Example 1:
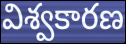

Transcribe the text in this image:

విశ్వకారణ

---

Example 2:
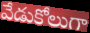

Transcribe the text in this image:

వేడుకోలుగా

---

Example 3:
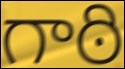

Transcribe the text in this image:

గాఠి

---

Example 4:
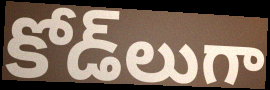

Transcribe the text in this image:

కోడ్‌లుగా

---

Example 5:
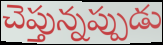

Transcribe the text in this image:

చెప్తున్నప్పుడు